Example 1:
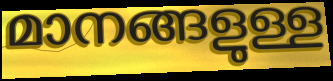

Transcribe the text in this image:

മാനങ്ങളുള്ള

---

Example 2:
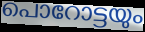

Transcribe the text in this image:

പൊറോട്ടയും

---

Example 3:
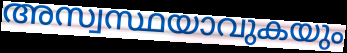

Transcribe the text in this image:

അസ്വസ്ഥയാവുകയും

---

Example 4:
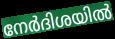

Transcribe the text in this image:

നേർദിശയിൽ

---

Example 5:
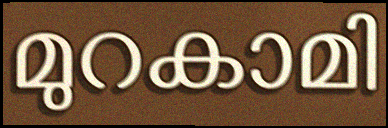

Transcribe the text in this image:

മുറകാമി